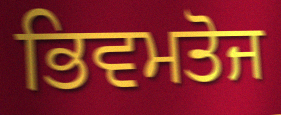
ਭਿਵਮਤੋਜ